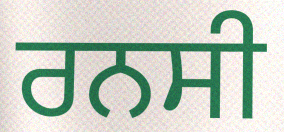
ਰਨਸੀ